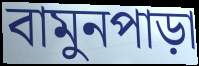
বামুনপাড়া